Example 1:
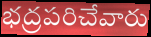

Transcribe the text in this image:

భద్రపరిచేవారు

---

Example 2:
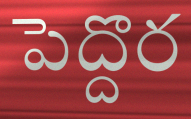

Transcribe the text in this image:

పెద్దొర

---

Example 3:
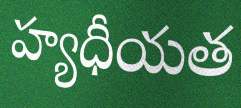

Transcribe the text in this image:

హ్యధీయత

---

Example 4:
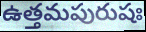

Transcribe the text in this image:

ఉత్తమపురుషః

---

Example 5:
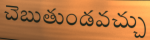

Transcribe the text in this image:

చెబుతుండవచ్చు